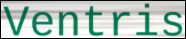
Ventris